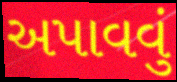
અપાવવું